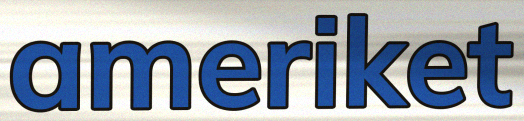
ameriket